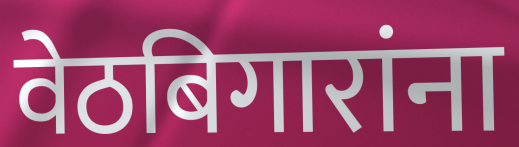
वेठबिगारांना